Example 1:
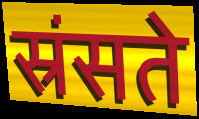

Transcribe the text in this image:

स्रंसते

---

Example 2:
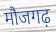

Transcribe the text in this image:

मौजगढ़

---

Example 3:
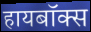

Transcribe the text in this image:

हायबॉक्स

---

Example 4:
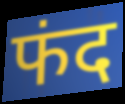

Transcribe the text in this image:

फंद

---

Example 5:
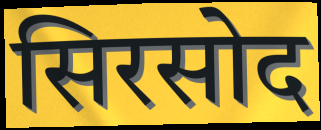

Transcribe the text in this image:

सिरसोद